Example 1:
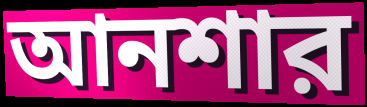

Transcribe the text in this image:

আনশার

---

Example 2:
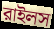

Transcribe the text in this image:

রাইলস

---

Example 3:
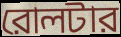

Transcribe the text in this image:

রোলটার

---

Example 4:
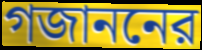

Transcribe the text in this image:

গজাননের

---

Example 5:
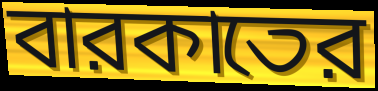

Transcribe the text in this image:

বারকাতের